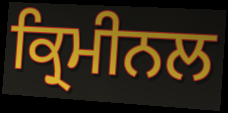
ਕ੍ਰਿਮੀਨਲ